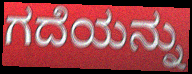
ಗದೆಯನ್ನು